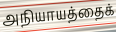
அநியாயத்தைக்